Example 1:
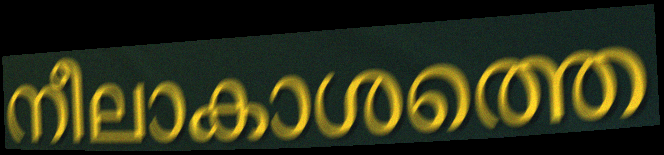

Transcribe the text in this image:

നീലാകാശത്തെ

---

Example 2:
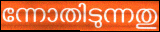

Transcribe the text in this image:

ന്നോതിടുന്നതു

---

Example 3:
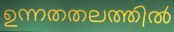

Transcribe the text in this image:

ഉന്നതതലത്തിൽ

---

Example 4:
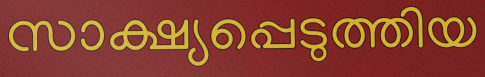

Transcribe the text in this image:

സാക്ഷ്യപ്പെടുത്തിയ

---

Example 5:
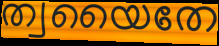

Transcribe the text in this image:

ത്വയൈതേ